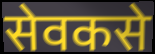
सेवकसे